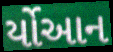
ર્યોઆન